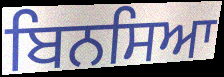
ਬਿਨਸਿਆ